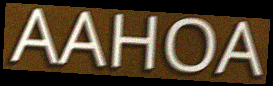
AAHOA